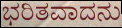
ಭರಿತವಾದನು